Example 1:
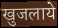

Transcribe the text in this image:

खुजलाये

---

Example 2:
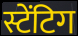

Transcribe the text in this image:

स्टेंटिग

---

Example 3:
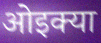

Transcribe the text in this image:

ओइक्या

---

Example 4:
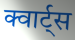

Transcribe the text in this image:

क्वार्ट्स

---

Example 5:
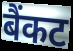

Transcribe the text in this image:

बैंकट